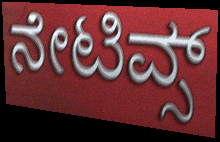
ನೇಟಿವ್ಸ್